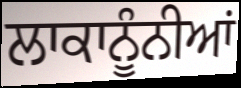
ਲਾਕਾਨੂੰਨੀਆਂ